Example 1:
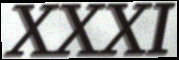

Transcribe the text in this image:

XXXI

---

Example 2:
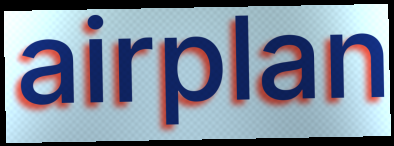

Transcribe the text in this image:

airplan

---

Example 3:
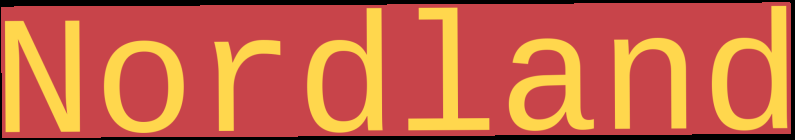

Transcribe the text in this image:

Nordland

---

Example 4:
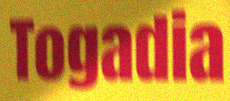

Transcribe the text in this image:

Togadia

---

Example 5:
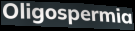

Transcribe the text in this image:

Oligospermia